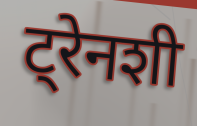
ट्रेनशी